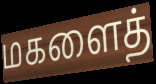
மகளைத்